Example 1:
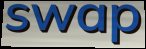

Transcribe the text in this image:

swap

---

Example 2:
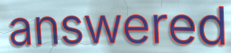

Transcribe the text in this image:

answered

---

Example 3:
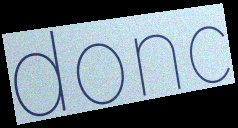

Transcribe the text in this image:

donc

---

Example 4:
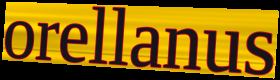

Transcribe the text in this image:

orellanus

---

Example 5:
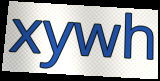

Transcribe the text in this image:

xywh